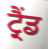
ਟ੍ਰੈਂਡ